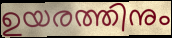
ഉയരത്തിനും